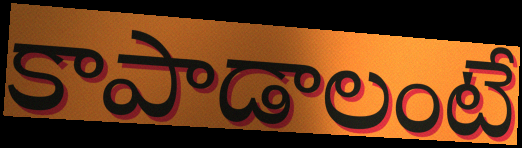
కాపాడాలంటే